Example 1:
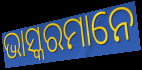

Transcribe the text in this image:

ଭାସ୍କରମାନେ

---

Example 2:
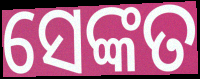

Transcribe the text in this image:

ସେଙ୍କତ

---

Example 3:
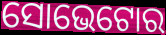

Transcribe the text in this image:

ସୋଭେଟୋର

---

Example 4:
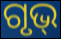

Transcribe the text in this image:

ଗୃଭ୍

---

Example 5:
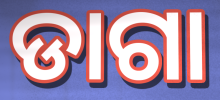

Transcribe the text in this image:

ଡାଗା